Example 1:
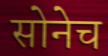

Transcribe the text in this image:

सोनेच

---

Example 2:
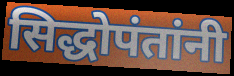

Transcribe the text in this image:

सिद्धोपंतांनी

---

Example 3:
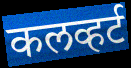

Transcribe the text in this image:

कलव्हर्ट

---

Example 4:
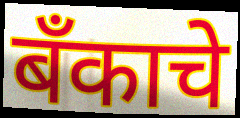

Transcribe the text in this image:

बँकाचे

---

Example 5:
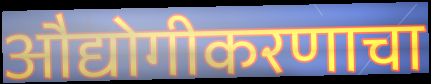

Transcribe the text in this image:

औद्योगीकरणाचा